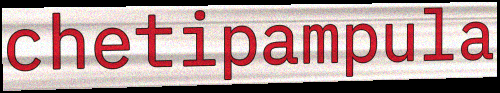
chetipampula